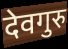
देवगुरु